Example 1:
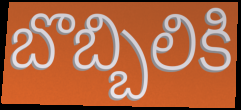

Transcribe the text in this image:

బొబ్బిలికి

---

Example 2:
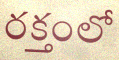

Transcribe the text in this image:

రక్తంలో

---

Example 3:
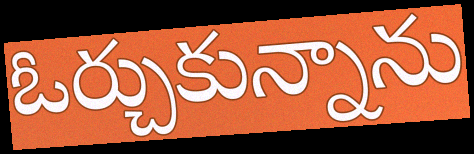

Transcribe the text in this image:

ఓర్చుకున్నాను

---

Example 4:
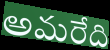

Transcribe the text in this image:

అమరేది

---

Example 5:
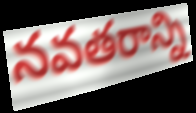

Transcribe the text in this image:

నవతరాన్ని